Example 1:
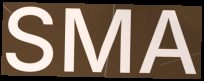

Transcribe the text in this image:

SMA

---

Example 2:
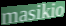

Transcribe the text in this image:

masikio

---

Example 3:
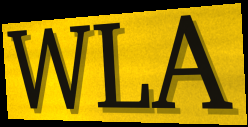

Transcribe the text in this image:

WLA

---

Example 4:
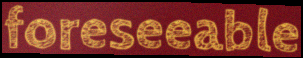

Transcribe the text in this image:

foreseeable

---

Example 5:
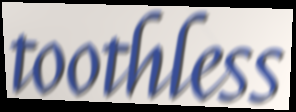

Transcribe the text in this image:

toothless